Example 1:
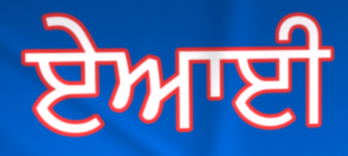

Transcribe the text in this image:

ਏਆਈ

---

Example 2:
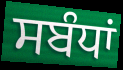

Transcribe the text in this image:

ਸਬੰਧਾਂ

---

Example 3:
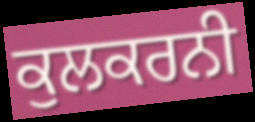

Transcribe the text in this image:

ਕੁਲਕਰਨੀ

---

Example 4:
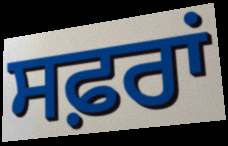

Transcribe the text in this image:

ਸਫ਼ਰਾਂ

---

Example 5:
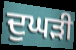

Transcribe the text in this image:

ਦੁਘੜੀ